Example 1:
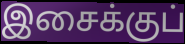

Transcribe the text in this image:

இசைக்குப்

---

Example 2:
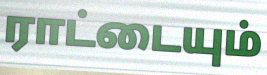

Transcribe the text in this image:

ராட்டையும்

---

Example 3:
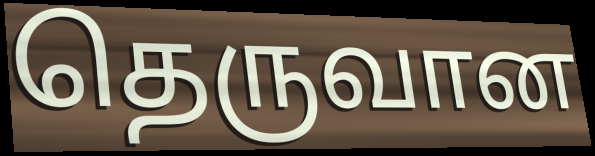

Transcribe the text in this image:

தெருவான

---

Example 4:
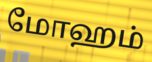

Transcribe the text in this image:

மோஹம்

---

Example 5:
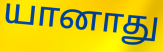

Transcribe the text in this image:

யானாது